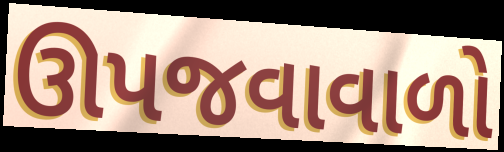
ઊપજવાવાળો